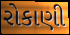
રોકાણી